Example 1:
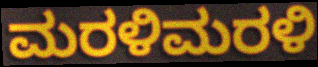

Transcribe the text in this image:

ಮರಳಿಮರಳಿ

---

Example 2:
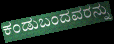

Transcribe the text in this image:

ಕಂಡುಬಂದವರನ್ನು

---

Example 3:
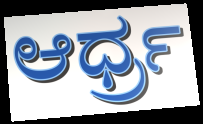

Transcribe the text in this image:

ಆರ್ಧ್ರ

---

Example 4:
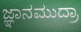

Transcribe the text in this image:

ಜ್ಞಾನಮುದ್ರಾ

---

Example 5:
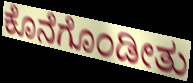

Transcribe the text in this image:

ಕೊನೆಗೊಂಡೀತು